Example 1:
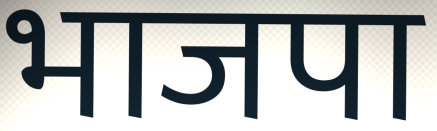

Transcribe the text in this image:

भाजपा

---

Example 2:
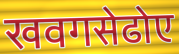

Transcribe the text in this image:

खवगसेढोए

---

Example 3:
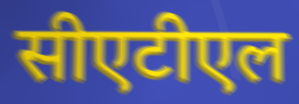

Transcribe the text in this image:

सीएटीएल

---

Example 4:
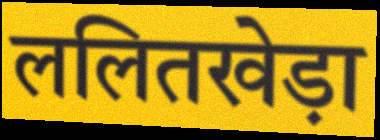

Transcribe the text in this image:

ललितखेड़ा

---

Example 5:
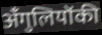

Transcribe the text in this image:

अँगुलियोंकी